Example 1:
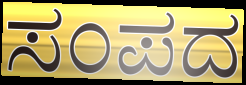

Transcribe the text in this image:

ಸಂಪದ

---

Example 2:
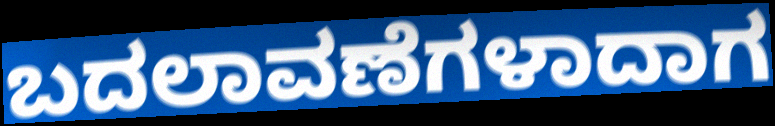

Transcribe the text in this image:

ಬದಲಾವಣೆಗಳಾದಾಗ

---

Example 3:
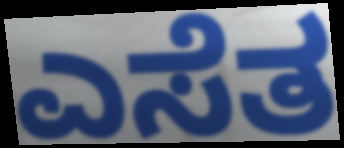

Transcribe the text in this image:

ಎಸೆತ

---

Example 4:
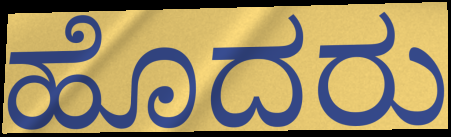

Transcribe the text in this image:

ಹೊದರು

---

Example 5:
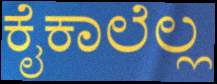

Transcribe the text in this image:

ಕೈಕಾಲೆಲ್ಲ